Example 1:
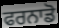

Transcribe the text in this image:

ਫਰਨਾਡੋ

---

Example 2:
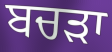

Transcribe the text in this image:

ਬਚੜਾ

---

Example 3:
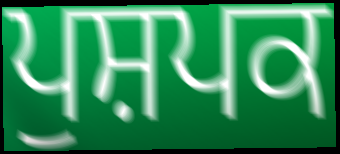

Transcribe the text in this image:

ਪੁਸ਼ਪਕ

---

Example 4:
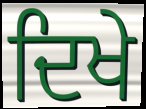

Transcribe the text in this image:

ਦਿਖੇ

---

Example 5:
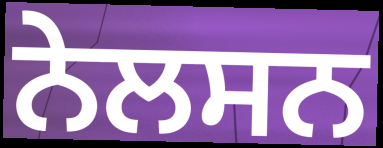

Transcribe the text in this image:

ਨੇਲਸਨ